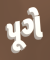
પૂગે